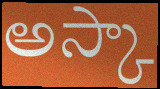
అస్కా